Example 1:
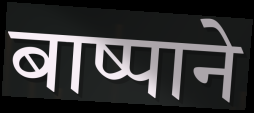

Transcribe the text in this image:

बाष्पाने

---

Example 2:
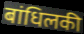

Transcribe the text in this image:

बांधिलकी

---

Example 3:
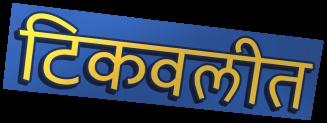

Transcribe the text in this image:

टिकवलीत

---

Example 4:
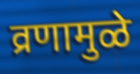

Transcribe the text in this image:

व्रणामुळे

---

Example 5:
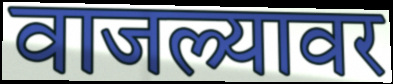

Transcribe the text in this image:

वाजल्यावर